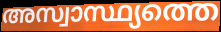
അസ്വാസ്ഥ്യത്തെ